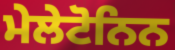
ਮੇਲੇਟੋਨਿਨ